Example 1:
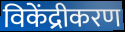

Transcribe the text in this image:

विकेंद्रीकरण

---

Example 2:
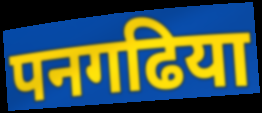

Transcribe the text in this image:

पनगढिया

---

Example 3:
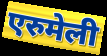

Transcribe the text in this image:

एरुमेली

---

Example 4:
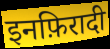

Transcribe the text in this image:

इनफ़िरादी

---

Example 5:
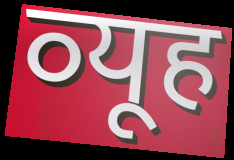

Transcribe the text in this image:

व्‍यूह